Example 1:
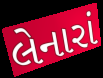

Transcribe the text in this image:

લેનારાં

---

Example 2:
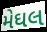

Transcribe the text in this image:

મેઘલ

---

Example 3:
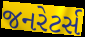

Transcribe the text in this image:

જનરેટર્સ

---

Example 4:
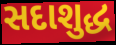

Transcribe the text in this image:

સદાશુદ્ધ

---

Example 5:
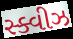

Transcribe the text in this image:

સ્ક્વીઝ